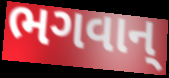
ભગવાન્